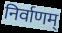
निर्वाणम्